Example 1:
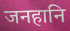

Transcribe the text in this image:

जनहानि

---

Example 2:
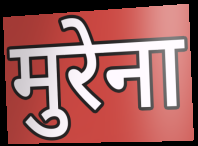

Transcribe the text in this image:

मुरेना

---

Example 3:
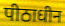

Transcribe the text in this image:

पीठाधीन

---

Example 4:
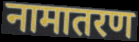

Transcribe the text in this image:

नामातरण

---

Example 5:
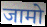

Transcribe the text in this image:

जामो